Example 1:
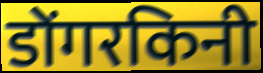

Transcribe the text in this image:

डोंगरकिनी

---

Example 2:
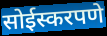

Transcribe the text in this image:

सोईस्करपणे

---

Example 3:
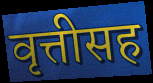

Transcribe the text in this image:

वृत्तीसह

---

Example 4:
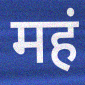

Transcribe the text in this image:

महं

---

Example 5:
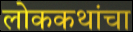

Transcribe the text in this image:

लोककथांचा